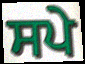
ਸਪੇ